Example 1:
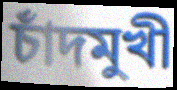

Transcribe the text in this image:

চাঁদমুখী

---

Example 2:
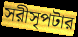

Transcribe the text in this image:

সরীসৃপটার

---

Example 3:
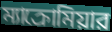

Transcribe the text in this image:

ম্যাক্রোমিয়ার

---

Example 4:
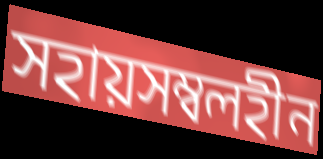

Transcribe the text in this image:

সহায়সম্বলহীন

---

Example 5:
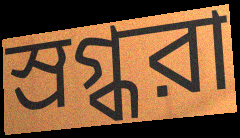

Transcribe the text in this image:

স্রগ্ধরা